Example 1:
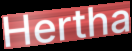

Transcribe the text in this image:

Hertha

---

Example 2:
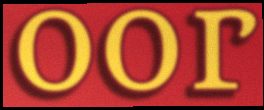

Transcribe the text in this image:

oor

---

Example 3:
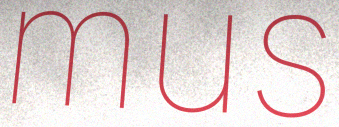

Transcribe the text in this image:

mus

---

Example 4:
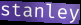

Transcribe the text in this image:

stanley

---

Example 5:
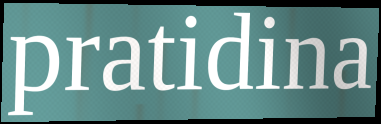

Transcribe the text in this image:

pratidina